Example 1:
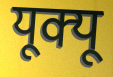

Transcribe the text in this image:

यूक्यू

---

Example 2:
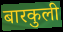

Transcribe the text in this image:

बारकुली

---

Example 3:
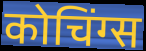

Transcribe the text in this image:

कोचिंग्स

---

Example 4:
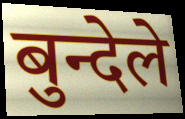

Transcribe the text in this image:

बुन्देले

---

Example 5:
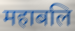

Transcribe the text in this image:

महाबलि